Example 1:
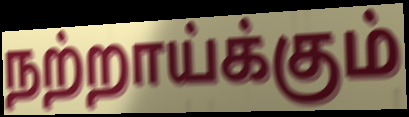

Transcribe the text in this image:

நற்றாய்க்கும்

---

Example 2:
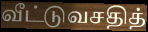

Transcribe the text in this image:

வீட்டுவசதித்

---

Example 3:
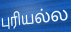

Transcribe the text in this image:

புரியல்ல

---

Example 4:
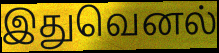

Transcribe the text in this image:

இதுவெனல்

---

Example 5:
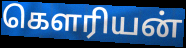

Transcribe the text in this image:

கௌரியன்